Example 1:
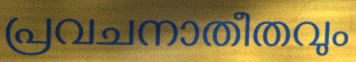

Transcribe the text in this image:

പ്രവചനാതീതവും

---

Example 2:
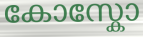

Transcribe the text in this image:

കോസ്കോ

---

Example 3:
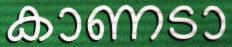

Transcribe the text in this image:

കാണടാ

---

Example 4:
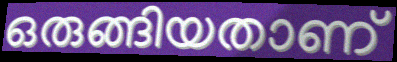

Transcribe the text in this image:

ഒരുങ്ങിയതാണ്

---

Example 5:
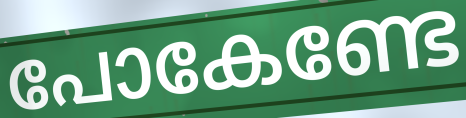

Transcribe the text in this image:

പോകേണ്ടേ